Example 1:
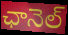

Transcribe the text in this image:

ఛానెల్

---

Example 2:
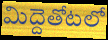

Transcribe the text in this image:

మిద్దెతోటలో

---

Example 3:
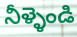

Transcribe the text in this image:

నీళ్ళెండి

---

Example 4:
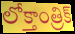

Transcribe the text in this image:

లోక్తాంత్రిక్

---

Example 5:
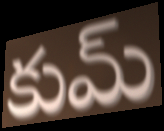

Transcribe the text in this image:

కుమ్